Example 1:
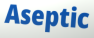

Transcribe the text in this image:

Aseptic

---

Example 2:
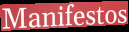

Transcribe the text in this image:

Manifestos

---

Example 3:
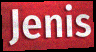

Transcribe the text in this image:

Jenis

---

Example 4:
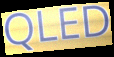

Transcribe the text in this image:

QLED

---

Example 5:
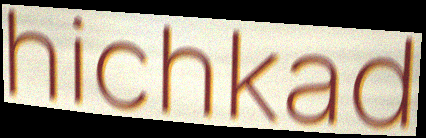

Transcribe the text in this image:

hichkad